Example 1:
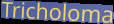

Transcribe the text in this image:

Tricholoma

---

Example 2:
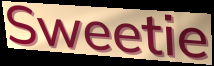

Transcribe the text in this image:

Sweetie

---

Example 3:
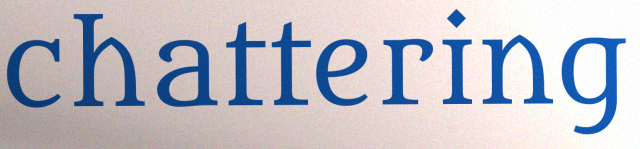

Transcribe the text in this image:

chattering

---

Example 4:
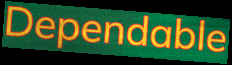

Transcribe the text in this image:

Dependable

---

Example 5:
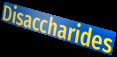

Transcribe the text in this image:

Disaccharides